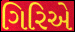
ગિરિએ